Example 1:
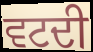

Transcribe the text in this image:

ਵਟਦੀ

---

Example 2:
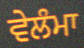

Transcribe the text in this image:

ਵੇਲੰਮਾ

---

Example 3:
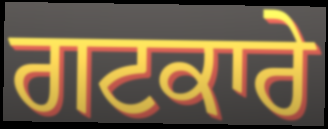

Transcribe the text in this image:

ਗਟਕਾਰੇ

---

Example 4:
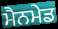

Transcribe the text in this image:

ਮੈਨਮੇਡ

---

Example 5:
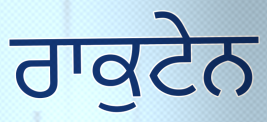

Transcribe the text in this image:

ਰਾਕੁਟੇਨ